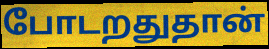
போடறதுதான்